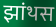
झांथस